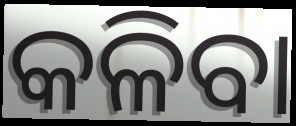
କଳିବା